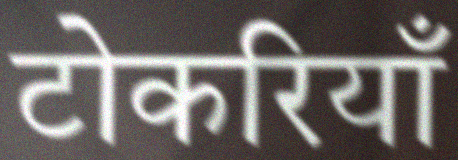
टोकरियाँ